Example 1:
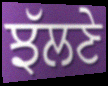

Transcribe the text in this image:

ਝੱਲਣੇ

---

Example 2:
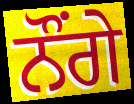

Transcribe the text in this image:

ਨੌਂਗੇ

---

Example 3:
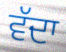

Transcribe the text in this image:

ਵੱਦਾ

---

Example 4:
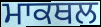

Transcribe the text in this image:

ਮਾਕਥਲ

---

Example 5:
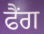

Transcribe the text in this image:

ਫੈਂਗ